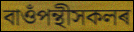
বাওঁপন্থীসকলৰ